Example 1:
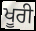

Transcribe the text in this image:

ਖੂਰੀ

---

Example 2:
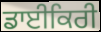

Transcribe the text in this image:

ਡਾਈਕਿਰੀ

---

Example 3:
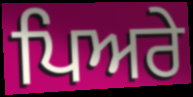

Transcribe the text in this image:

ਪਿਅਰੇ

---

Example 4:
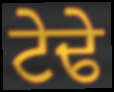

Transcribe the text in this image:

ਟੇਢੇ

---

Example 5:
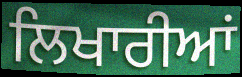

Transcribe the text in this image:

ਲਿਖਾਰੀਆਂ